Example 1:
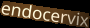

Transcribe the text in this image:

endocervix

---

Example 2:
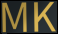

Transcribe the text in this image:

MK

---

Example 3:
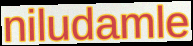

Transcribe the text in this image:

niludamle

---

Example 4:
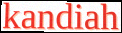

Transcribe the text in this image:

kandiah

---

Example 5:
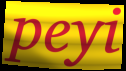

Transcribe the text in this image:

peyi